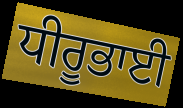
ਧੀਰੂਭਾਈ